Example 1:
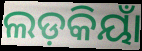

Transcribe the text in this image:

ଲଡ଼କିୟାଁ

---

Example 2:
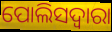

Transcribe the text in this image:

ପୋଲିସଦ୍ୱାରା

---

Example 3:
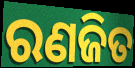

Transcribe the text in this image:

ରଣଜିତ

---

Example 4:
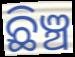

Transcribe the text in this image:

ଛିଞ୍ଚ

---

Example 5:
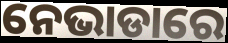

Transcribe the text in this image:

ନେଭାଡାରେ